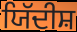
ਯਿੱਦੀਸ਼